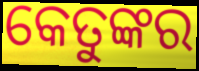
କେତୁଙ୍କର